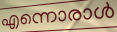
എന്നൊരാൾ